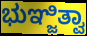
ಭುಞ್ಜಿತ್ವಾ